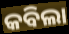
କବିଲା